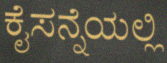
ಕೈಸನ್ನೆಯಲ್ಲಿ